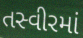
તસ્વીરમાં